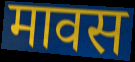
मावस